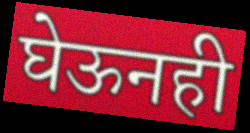
घेऊनही